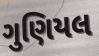
ગુણિયલ